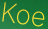
Koe